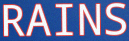
RAINS